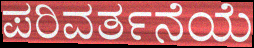
ಪರಿವರ್ತನೆಯೆ